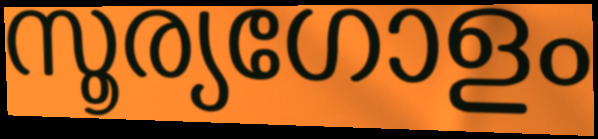
സൂര്യഗോളം